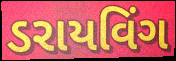
ડરાયવિંગ